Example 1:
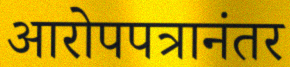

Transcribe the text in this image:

आरोपपत्रानंतर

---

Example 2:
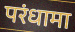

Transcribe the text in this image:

परंधामा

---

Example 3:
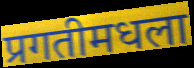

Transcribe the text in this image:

प्रगतीमधला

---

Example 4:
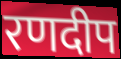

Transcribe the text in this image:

रणदीप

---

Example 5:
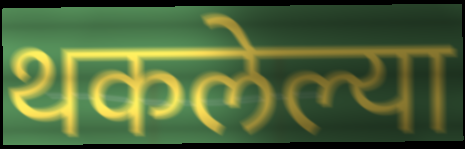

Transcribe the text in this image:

थकलेल्या